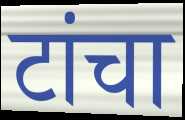
टांचा